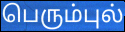
பெரும்புல்